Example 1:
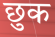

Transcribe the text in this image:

छुक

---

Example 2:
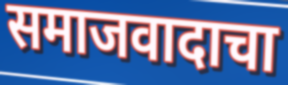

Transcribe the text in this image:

समाजवादाचा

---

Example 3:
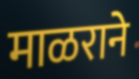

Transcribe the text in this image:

माळराने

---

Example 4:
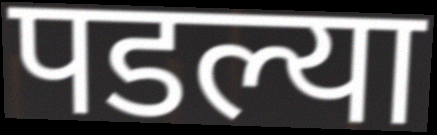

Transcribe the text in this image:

पडल्या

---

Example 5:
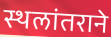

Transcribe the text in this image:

स्थलांतराने